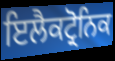
ਇਲੈਕਟ੍ਰੋਨਿਕ